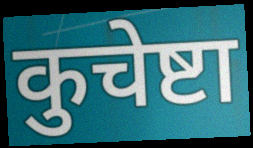
कुचेष्टा